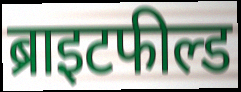
ब्राइटफील्ड